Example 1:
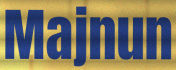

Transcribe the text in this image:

Majnun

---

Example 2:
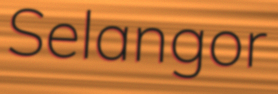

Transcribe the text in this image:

Selangor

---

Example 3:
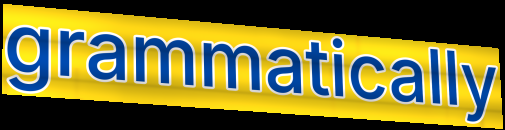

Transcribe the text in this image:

grammatically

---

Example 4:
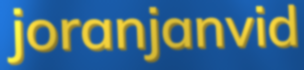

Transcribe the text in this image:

joranjanvid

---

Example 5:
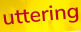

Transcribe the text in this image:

uttering